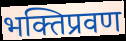
भक्तिप्रवण